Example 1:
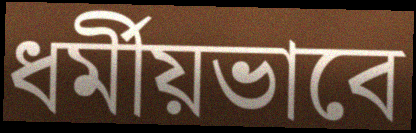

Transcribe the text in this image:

ধর্মীয়ভাবে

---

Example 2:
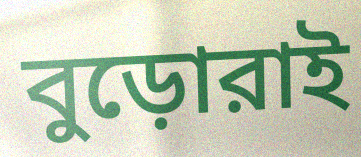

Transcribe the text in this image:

বুড়োরাই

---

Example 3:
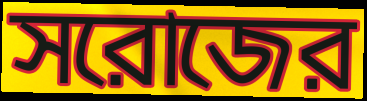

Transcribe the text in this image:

সরোজের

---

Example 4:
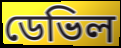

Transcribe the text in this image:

ডেভিল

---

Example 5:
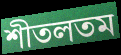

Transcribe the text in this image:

শীতলতম